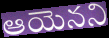
ఆయెనని